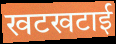
खटखटाई